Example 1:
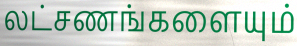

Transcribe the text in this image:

லட்சணங்களையும்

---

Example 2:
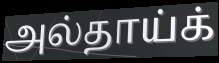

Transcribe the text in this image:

அல்தாய்க்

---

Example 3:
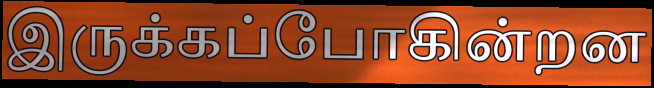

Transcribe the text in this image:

இருக்கப்போகின்றன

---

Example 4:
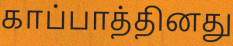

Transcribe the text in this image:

காப்பாத்தினது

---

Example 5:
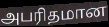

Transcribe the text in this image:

அபரிதமான